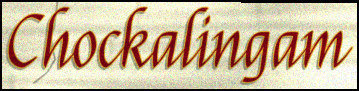
Chockalingam